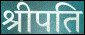
श्रीपति